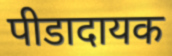
पीडादायक